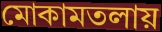
মোকামতলায়